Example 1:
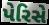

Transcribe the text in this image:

પેરિસે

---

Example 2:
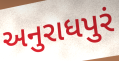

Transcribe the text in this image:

અનુરાધપુરં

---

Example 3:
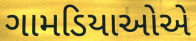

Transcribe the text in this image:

ગામડિયાઓએ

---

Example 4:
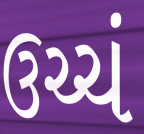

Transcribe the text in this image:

ઉચ્ચં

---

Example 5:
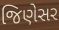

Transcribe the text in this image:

જિણેસર